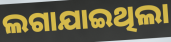
ଲଗାଯାଇଥିଲା